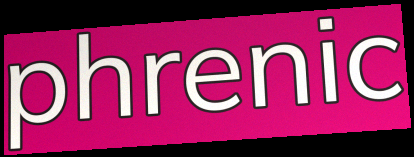
phrenic